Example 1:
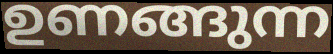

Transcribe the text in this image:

ഉണങ്ങുന്ന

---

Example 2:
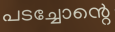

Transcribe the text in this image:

പടച്ചോന്റെ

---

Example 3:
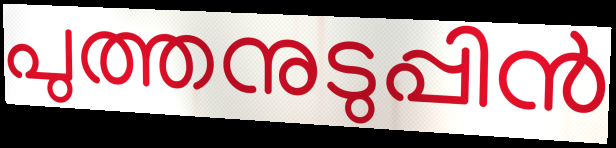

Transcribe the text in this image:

പുത്തനുടുപ്പിൻ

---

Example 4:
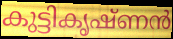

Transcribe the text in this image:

കുട്ടികൃഷ്ണൻ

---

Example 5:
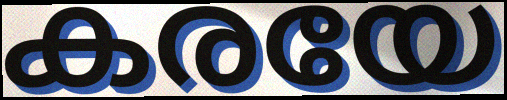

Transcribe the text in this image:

കരയേ